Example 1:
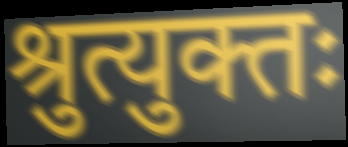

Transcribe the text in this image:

श्रुत्युक्तः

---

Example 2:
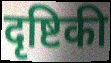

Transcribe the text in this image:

दृष्टिकी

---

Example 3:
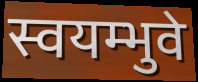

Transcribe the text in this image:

स्वयम्भुवे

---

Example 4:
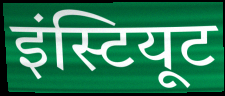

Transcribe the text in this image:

इंस्टियूट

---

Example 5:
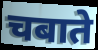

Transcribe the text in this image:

चबाते